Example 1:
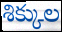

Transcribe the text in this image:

శిక్కుల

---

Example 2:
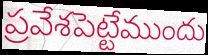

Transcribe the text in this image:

ప్రవేశపెట్టేముందు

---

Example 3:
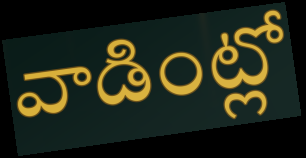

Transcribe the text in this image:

వాడింట్లో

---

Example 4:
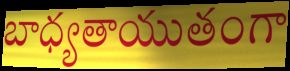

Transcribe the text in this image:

బాధ్యతాయుతంగా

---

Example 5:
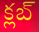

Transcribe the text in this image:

క్లబ్